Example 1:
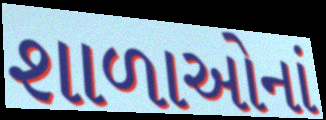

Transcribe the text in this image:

શાળાઓનાં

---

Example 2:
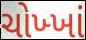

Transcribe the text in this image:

ચોખ્ખાં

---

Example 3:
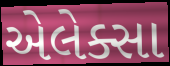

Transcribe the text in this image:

એલેક્સા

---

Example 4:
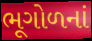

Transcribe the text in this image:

ભૂગોળનાં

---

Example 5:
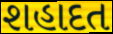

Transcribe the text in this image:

શહાદત